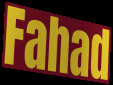
Fahad